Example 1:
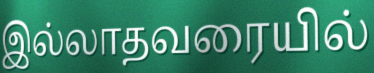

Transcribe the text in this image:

இல்லாதவரையில்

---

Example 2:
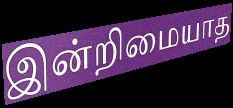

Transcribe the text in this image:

இன்றிமையாத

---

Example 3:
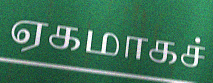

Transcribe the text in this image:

ஏகமாகச்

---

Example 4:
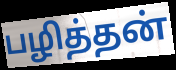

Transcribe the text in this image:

பழித்தன்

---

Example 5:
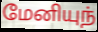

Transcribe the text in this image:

மேனியுந்